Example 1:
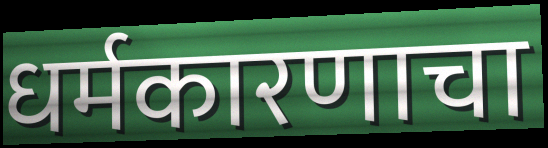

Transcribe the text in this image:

धर्मकारणाचा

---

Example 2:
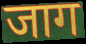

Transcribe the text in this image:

जाग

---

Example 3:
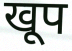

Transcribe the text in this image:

खूप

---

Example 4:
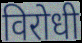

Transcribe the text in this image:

विरोधी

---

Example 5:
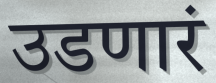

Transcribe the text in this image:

उडणारं